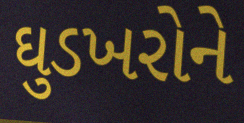
ઘુડખરોને